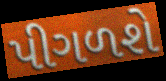
પીગળશે